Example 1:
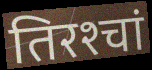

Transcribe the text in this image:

तिरश्चां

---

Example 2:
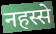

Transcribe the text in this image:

नहस्से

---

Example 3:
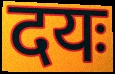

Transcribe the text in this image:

दयः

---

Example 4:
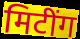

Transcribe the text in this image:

मिटींग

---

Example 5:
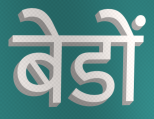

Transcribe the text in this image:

बेडों